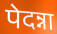
पेदन्ना